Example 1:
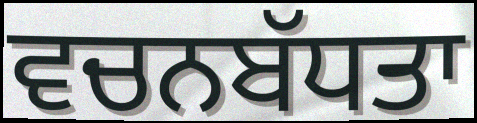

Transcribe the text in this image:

ਵਚਨਬੱਧਤਾ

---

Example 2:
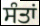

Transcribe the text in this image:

ਸੰਤਾਂ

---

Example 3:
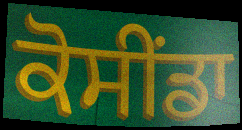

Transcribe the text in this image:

ਕੋਸੀਂਡਾ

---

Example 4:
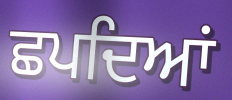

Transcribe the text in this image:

ਛਪਦਿਆਂ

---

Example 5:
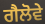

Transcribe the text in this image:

ਗੈਲੋਵੇ